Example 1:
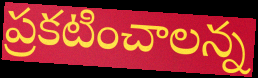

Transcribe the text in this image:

ప్రకటించాలన్న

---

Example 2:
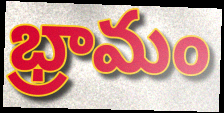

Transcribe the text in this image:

భ్రామం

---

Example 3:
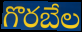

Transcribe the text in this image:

గొరబేల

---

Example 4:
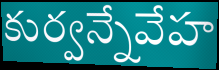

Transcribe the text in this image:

కుర్వన్నేవేహ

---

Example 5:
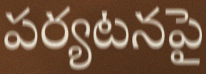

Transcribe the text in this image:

పర్యటనపై